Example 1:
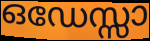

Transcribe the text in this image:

ഒഡേസ്സാ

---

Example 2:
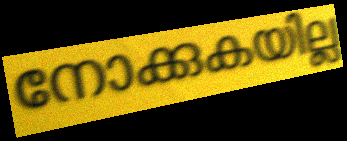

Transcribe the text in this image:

നോക്കുകയില്ല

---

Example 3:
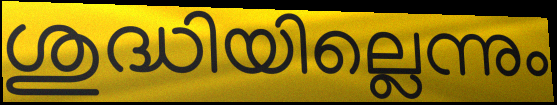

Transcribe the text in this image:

ശുദ്ധിയില്ലെന്നും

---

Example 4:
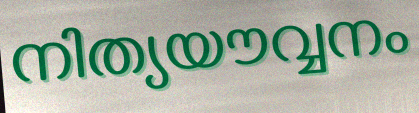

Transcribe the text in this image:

നിത്യയൗവ്വനം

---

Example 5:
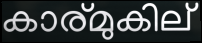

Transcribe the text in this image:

കാര്മുകില്